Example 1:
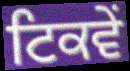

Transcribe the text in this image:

ਟਿਕਵੇਂ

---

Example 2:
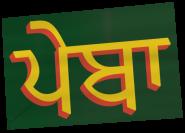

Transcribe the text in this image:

ਪੇਬਾ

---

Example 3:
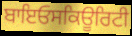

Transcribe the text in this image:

ਬਾਇਓਸਕਿਊਰਿਟੀ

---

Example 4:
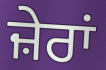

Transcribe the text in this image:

ਜ਼ੇਰਾਂ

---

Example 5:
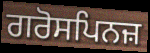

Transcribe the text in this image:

ਗਰੋਸਪਿਨਜ਼